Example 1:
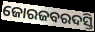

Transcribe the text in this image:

ଜୋରଜବରଦସ୍ତି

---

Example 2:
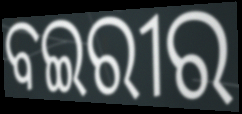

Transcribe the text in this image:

ବଇରୀର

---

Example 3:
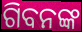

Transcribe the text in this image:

ଗିବନଙ୍କ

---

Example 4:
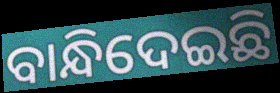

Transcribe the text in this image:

ବାନ୍ଧିଦେଇଛି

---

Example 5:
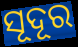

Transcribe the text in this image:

ସୂଦୂର